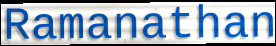
Ramanathan